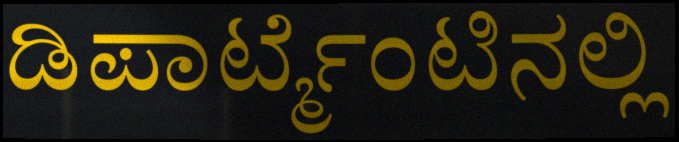
ಡಿಪಾರ್ಟ್ಮೆಂಟಿನಲ್ಲಿ